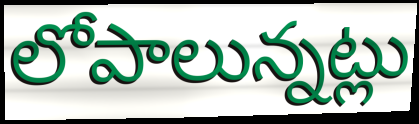
లోపాలున్నట్లు